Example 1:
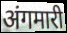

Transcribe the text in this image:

अंगमारी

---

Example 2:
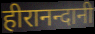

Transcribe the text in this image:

हीरानन्दानी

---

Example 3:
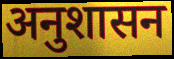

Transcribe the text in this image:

अनुशासन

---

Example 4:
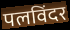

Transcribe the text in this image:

पलविंदर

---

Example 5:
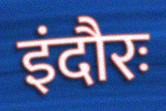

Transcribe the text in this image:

इंदौरः